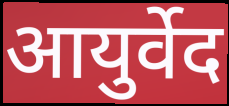
आयुर्वेद